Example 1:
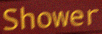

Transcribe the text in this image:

Shower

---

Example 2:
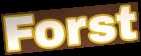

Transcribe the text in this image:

Forst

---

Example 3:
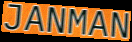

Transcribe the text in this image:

JANMAN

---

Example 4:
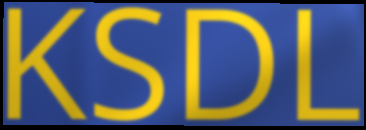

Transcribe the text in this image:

KSDL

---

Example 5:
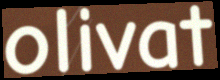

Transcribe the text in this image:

olivat